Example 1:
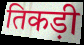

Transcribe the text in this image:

तिकड़ी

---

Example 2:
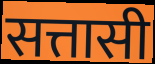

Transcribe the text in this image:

सत्तासी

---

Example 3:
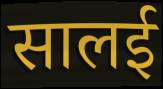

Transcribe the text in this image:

सालई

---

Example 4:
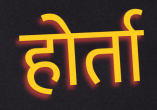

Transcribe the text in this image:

होर्ता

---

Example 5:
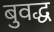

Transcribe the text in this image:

बुवद्ध